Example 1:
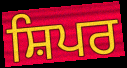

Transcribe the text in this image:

ਸ਼ਿਪਰ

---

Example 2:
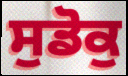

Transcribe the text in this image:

ਸੁਡੋਕੁ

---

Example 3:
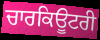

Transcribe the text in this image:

ਚਾਰਕਿਊਟਰੀ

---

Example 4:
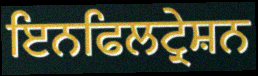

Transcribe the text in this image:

ਇਨਫਿਲਟ੍ਰੇਸ਼ਨ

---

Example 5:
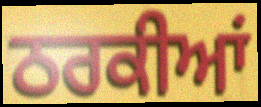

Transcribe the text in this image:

ਠਰਕੀਆਂ